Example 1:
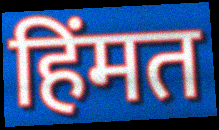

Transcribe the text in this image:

हिंमत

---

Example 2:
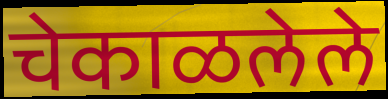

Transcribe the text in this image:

चेकाळलेले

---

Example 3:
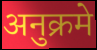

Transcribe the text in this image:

अनुक्रमे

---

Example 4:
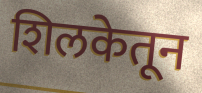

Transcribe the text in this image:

शिलकेतून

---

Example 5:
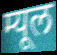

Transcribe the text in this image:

म्यूल